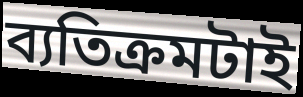
ব্যতিক্রমটাই